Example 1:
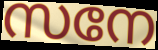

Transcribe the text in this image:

സനേ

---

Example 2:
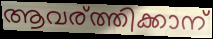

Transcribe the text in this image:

ആവര്ത്തിക്കാന്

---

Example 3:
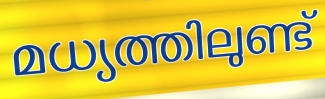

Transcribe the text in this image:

മധ്യത്തിലുണ്ട്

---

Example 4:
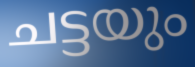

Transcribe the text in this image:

ചട്ടയും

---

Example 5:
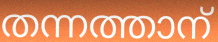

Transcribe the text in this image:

തന്നത്താന്